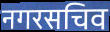
नगरसचिव